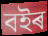
বইৰ